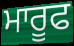
ਮਾਰੂਫ